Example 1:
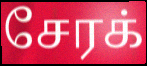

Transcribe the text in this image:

சேரக்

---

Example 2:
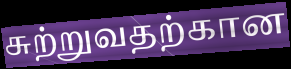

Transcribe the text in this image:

சுற்றுவதற்கான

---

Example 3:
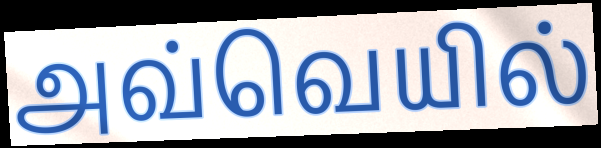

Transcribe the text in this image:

அவ்வெயில்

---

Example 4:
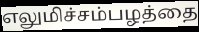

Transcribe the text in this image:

எலுமிச்சம்பழத்தை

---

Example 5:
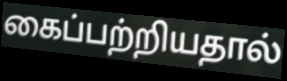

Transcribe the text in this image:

கைப்பற்றியதால்